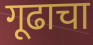
गूढाचा